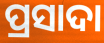
ପ୍ରସାଦା